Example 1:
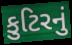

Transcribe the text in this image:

કુટિરનું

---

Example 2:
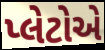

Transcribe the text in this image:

પ્લેટોએ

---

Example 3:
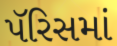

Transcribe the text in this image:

પૅરિસમાં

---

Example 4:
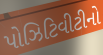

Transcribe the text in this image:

પોઝિટિવીટીનો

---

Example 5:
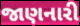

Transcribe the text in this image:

જાણનારી